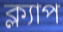
ক্ল্যাপ